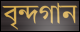
বৃন্দগান